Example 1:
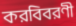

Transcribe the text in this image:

করবিবরণী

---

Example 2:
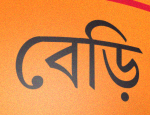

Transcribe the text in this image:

বেড়ি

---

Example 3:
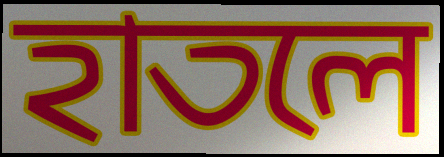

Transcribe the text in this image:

হাতলে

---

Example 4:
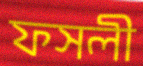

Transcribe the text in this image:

ফসলী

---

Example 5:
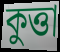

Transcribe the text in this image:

কুত্তা